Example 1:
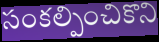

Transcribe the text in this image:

సంకల్పించికొని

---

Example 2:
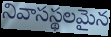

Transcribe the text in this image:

నివాసస్థలమైన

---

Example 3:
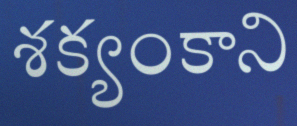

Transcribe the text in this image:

శక్యంకాని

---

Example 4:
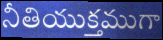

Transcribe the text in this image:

నీతియుక్తముగా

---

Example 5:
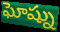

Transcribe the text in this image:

ఘోష్ను